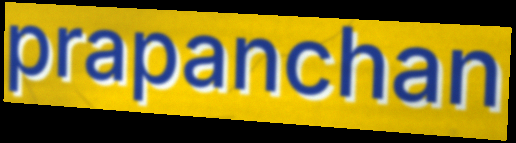
prapanchan